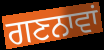
ਗਣਨਾਵਾਂ